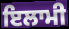
ਇਲਾਮੀ